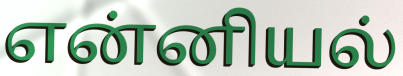
என்னியல்